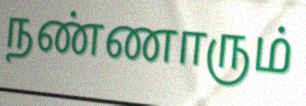
நண்ணாரும்